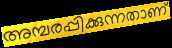
അമ്പരപ്പിക്കുന്നതാണ്